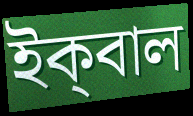
ইক্‌বাল